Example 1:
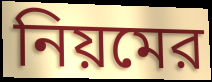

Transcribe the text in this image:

নিয়মের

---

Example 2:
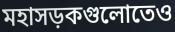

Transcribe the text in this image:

মহাসড়কগুলোতেও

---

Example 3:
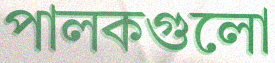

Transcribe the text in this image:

পালকগুলো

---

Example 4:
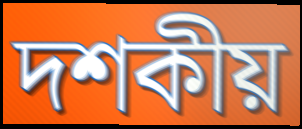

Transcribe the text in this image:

দশকীয়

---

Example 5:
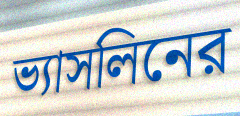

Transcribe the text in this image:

ভ্যাসলিনের